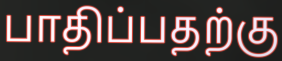
பாதிப்பதற்கு